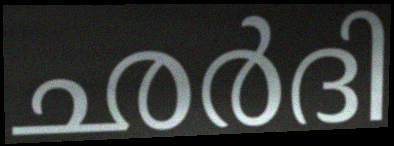
ഛർദി